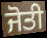
ਜੋਤੀ